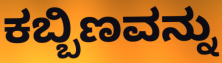
ಕಬ್ಬಿಣವನ್ನು